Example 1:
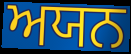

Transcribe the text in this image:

ਅਯਨ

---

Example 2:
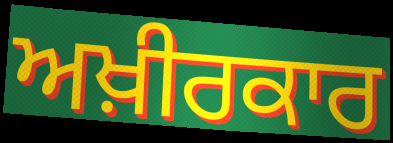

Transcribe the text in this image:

ਅਖ਼ੀਰਕਾਰ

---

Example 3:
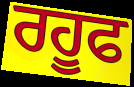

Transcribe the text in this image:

ਰਹੂਫ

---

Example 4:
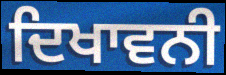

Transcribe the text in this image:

ਦਿਖਾਵਨੀ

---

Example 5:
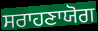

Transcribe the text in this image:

ਸਰਾਹਣਾਯੋਗ